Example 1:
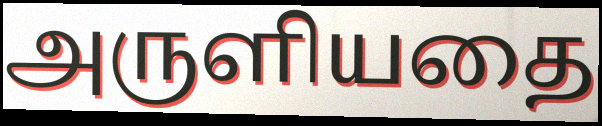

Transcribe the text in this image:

அருளியதை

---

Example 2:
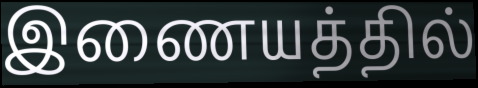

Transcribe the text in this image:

இணையத்தில்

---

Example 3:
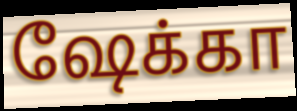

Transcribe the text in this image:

ஷேக்கா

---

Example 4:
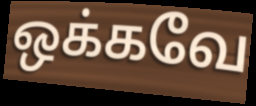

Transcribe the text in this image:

ஒக்கவே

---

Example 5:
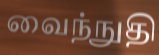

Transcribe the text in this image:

வைந்நுதி